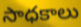
సాధకాలు